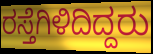
ರಸ್ತೆಗಿಳಿದಿದ್ದರು